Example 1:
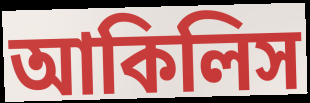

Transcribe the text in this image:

আকিলিস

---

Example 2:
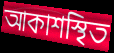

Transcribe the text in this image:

আকাশস্থিত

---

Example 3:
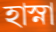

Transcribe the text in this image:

হাস্না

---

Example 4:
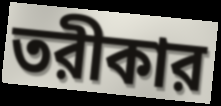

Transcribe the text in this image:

তরীকার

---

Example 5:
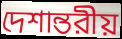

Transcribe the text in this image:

দেশান্তরীয়